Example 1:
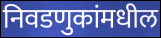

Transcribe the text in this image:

निवडणुकांमधील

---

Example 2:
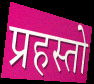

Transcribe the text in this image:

प्रहस्तो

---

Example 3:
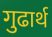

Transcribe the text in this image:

गुढार्थ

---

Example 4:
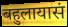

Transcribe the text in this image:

बहुलायासं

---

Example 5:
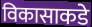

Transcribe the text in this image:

विकासाकडे